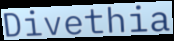
Divethia